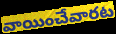
వాయించేవారట